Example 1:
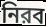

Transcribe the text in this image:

নিরব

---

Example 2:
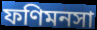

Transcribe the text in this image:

ফণিমনসা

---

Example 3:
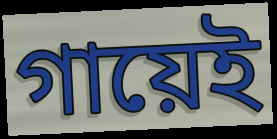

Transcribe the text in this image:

গায়েই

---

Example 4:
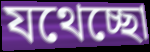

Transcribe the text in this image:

যথেচ্ছো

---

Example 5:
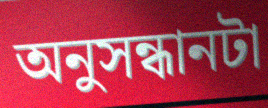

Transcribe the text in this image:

অনুসন্ধানটা